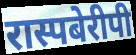
रास्पबेरीपी